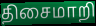
திசைமாறி